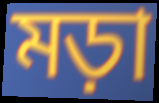
মড়া